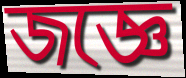
জজ্ঞে